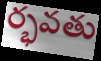
ర్భవతు